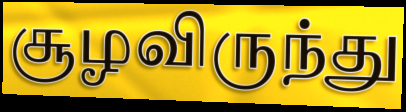
சூழவிருந்து